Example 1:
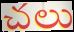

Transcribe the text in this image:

చలు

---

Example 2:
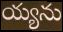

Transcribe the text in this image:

య్యను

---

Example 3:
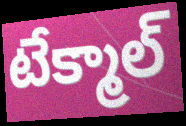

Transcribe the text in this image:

టేక్మాల్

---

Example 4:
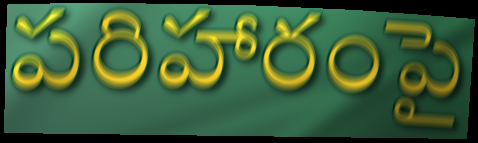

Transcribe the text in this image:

పరిహారంపై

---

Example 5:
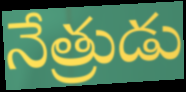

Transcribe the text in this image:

నేత్రుడు